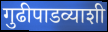
गुढीपाडव्याशी